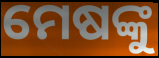
ମେଷଙ୍କୁ